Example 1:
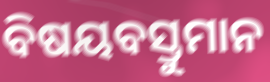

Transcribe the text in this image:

ବିଷୟବସ୍ତୁମାନ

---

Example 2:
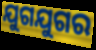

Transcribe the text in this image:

ଯୁଗଯୁଗର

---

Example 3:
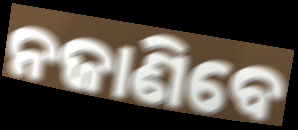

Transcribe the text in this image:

ନଜାଣିବେ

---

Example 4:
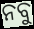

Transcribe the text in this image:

ନବୁ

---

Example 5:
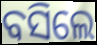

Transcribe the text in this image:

ବସିଲେ